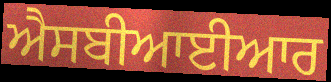
ਐਸਬੀਆਈਆਰ